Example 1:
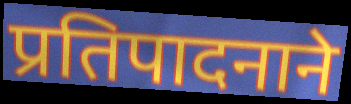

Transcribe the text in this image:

प्रतिपादनाने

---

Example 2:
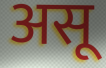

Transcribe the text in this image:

असू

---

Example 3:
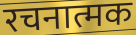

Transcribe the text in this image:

रचनात्मक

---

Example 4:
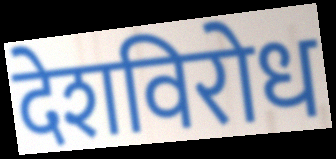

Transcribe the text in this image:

देशविरोध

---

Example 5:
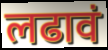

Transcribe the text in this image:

लढावं